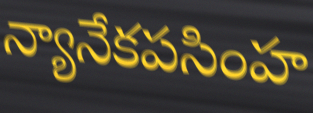
న్యానేకపసింహ